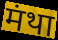
मंथा